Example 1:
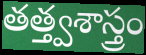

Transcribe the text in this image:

తత్త్వశాస్త్రం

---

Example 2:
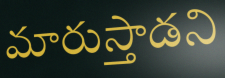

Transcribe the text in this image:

మారుస్తాడని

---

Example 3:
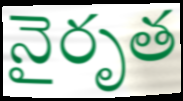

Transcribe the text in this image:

నైరృత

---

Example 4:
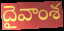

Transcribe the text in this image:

దైవాంశ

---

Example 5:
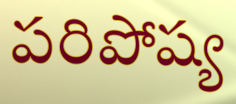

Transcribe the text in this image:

పరిపోష్య